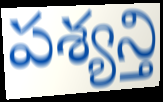
పశ్యన్తి